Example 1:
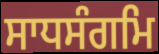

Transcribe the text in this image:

ਸਾਧਸੰਗਮਿ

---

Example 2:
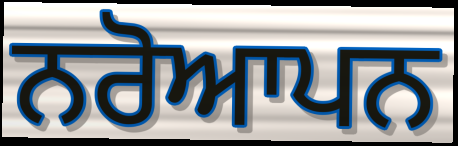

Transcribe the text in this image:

ਨਰੋਆਪਨ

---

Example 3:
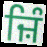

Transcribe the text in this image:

ਜ਼ਿੰ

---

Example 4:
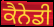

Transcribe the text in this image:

ਕੈਨੇਡੀ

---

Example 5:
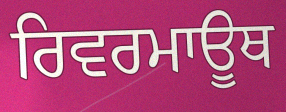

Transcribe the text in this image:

ਰਿਵਰਮਾਊਥ